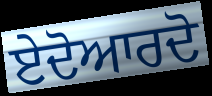
ਏਦੋਆਰਦੋ